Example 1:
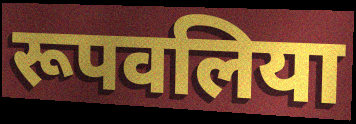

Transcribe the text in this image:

रूपवलिया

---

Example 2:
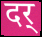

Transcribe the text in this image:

दर्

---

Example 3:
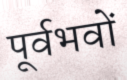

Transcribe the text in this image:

पूर्वभवों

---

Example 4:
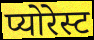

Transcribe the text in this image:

प्योरेस्ट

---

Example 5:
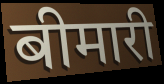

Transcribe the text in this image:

बीमारी